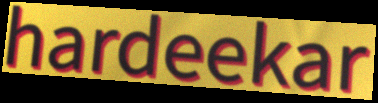
hardeekar